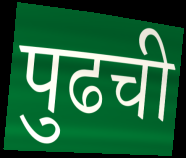
पुढची